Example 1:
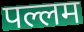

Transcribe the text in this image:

पल्लम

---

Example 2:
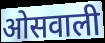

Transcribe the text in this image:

ओसवाली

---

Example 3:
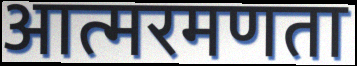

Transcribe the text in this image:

आत्मरमणता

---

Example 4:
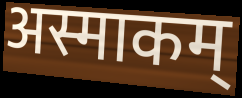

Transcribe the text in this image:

अस्माकम्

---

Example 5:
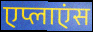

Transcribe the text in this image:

एप्लाएंस